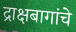
द्राक्षबागांचे